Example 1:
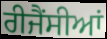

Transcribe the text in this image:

ਰੀਜੈਂਸੀਆਂ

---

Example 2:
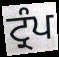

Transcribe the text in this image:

ਟ੍ਰੰਪ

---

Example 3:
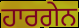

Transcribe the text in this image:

ਹਾਰਗੇਨ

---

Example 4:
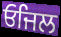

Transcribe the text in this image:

ਓਜਿਲ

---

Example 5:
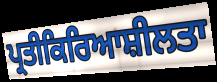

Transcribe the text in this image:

ਪ੍ਰਤੀਕਿਰਿਆਸ਼ੀਲਤਾ